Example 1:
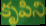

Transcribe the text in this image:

కృపిని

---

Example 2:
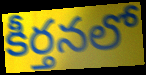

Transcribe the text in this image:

కీర్తనలో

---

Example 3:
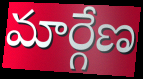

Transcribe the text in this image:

మార్గేణ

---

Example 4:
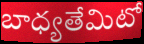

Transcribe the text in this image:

బాధ్యతేమిటో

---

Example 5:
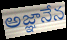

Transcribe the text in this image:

అజ్ఞానేన